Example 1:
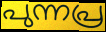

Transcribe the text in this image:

പുന്നപ്ര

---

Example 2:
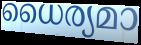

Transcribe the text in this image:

ധൈര്യമാ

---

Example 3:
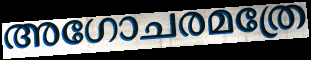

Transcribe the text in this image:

അഗോചരമത്രേ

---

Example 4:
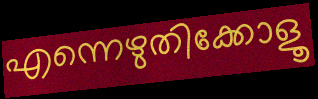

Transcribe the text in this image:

എന്നെഴുതിക്കോളൂ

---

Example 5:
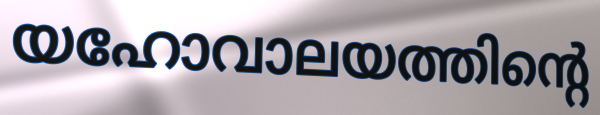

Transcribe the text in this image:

യഹോവാലയത്തിന്റെ